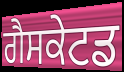
ਗੈਸਕੇਟਡ